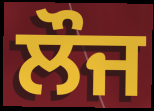
ਲੌਜ